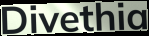
Divethia